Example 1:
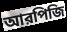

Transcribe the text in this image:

আরপিজি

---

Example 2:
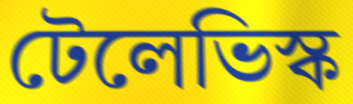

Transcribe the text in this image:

টেলেভিস্ক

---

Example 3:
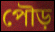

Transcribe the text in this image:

পৌড়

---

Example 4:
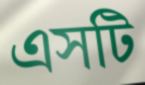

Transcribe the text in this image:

এসটি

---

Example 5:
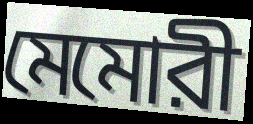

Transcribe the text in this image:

মেমোরী